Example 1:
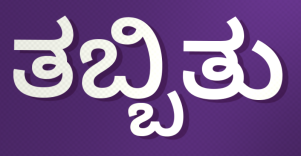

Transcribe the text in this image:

ತಬ್ಬಿತು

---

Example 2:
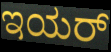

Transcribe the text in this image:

ಇಯರ್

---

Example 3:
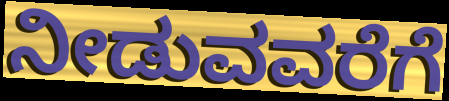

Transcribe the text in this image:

ನೀಡುವವರೆಗೆ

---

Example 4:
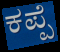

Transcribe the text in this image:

ಕಪ್ಪೆ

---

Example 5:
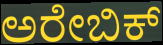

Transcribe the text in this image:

ಅರೇಬಿಕ್